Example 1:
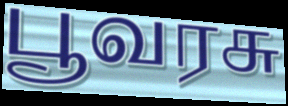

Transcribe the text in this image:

பூவரசு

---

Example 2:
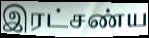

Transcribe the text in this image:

இரட்சண்ய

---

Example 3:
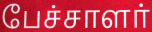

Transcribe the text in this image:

பேச்சாளர்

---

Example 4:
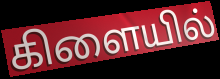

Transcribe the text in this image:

கிளையில்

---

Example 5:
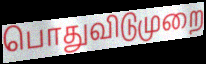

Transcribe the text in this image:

பொதுவிடுமுறை